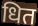
धित